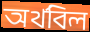
অর্থবিল